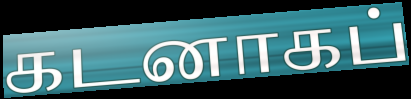
கடனாகப்